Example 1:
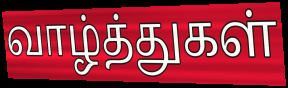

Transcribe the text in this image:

வாழ்த்துகள்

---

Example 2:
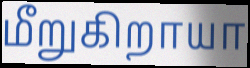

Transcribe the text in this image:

மீறுகிறாயா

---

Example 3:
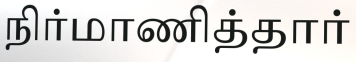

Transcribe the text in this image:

நிர்மாணித்தார்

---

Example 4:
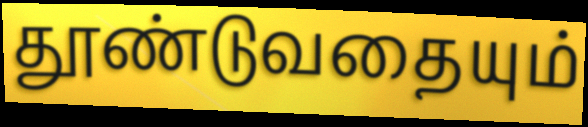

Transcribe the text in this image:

தூண்டுவதையும்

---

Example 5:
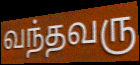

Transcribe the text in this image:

வந்தவரு